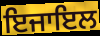
ਇਜਾਇਲ